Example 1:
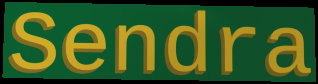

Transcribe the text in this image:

Sendra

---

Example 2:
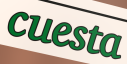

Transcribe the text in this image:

cuesta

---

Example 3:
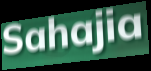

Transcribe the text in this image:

Sahajia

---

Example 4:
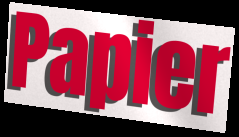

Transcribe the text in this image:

Papier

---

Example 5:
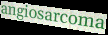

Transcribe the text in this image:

angiosarcoma